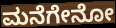
ಮನೆಗೇನೋ